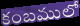
కంబములో